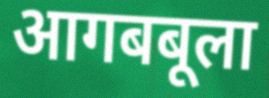
आगबबूला